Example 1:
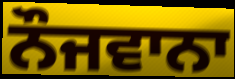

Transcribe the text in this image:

ਨੌਜਵਾਨਾ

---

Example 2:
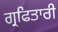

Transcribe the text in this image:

ਗ੍ਰਫਿਤਾਰੀ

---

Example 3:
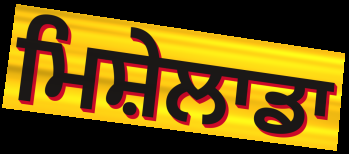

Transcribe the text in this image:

ਮਿਸ਼ੇਲਾਡਾ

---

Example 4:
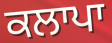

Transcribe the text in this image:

ਕਲਾਪਾ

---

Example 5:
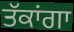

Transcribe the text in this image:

ਤੱਕਾਂਗਾ